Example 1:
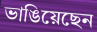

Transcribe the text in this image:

ভাঙিয়েছেন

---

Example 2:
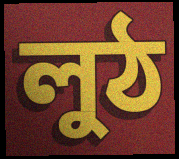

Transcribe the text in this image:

লুঠ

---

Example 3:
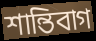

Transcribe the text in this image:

শান্তিবাগ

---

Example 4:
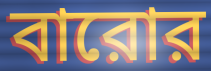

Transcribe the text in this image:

বারোর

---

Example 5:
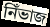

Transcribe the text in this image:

নিঁভাজ